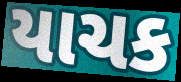
યાચક